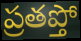
ప్రతప్తో